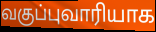
வகுப்புவாரியாக